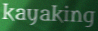
kayaking